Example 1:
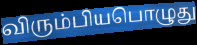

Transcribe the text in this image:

விரும்பியபொழுது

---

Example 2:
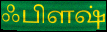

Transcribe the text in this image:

ஃபிளஷ்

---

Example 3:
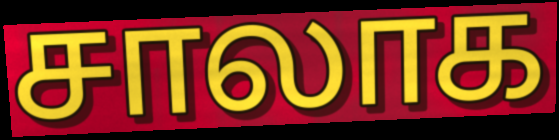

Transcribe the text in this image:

சாலாக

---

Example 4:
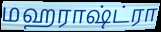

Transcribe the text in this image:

மஹராஷ்ட்ரா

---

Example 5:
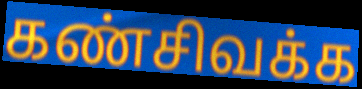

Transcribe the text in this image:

கண்சிவக்க